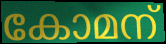
കോമന്